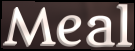
Meal